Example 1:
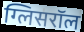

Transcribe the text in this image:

ग्लिसरॉल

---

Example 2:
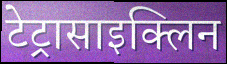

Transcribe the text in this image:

टेट्रासाइक्लिन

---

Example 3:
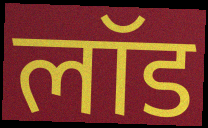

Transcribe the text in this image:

लॉड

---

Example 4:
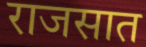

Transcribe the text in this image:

राजसात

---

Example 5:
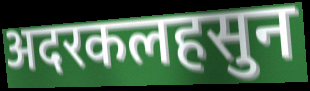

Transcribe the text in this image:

अदरकलहसुन